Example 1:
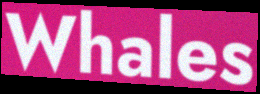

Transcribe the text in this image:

Whales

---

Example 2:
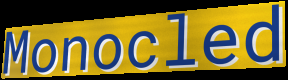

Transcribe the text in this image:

Monocled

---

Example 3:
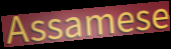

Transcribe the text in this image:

Assamese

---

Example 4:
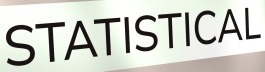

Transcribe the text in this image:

STATISTICAL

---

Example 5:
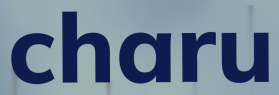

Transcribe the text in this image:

charu